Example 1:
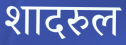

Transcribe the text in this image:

शादरुल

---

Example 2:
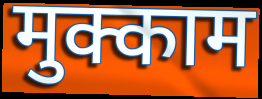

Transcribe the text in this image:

मुक्काम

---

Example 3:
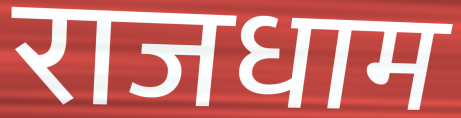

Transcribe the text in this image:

राजधाम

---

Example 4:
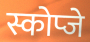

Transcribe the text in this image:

स्कोप्जे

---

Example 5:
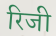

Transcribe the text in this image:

रिजी